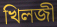
খিলজী